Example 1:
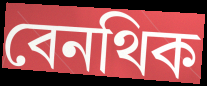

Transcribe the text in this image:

বেনথিক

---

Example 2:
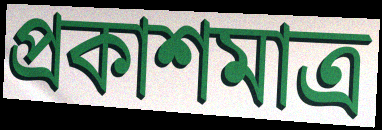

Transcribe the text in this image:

প্রকাশমাত্র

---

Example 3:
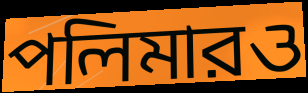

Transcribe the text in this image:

পলিমারও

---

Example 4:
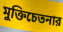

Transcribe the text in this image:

মুক্তিচেতনার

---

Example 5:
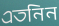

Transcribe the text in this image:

এতনিন